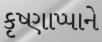
કૃષ્ણાપ્પાને